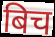
बिच